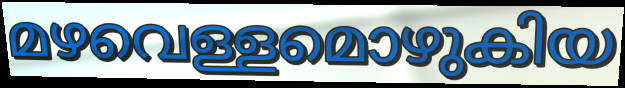
മഴവെള്ളമൊഴുകിയ